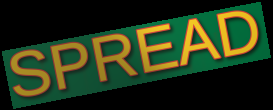
SPREAD